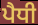
ਪੈਧੀ